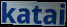
katai